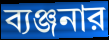
ব্যঞ্জনার